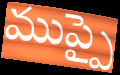
ముప్పై